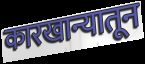
कारखान्यातून